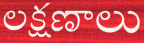
లక్షణాలు